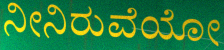
ನೀನಿರುವೆಯೋ